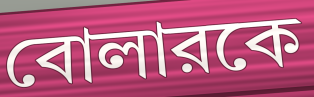
বোলারকে